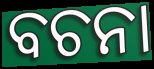
ବଚନା